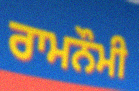
ਰਾਮਨੌਮੀ